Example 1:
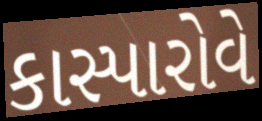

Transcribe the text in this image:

કાસ્પારોવે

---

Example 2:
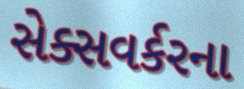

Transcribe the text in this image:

સેક્સવર્કરના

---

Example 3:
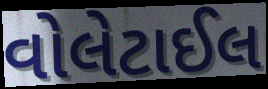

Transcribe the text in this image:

વોલેટાઈલ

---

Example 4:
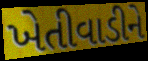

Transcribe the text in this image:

ખેતીવાડીને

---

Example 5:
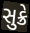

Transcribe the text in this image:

સુક્રે